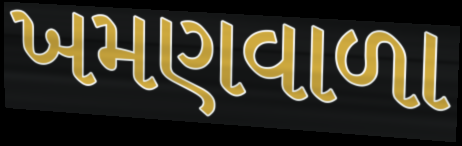
ખમણવાળા